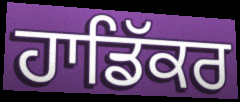
ਹਾਡਿੱਕਰ